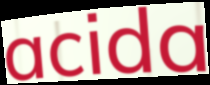
acida